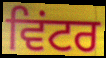
ਵਿਂਟਰ